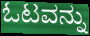
ಓಟವನ್ನು